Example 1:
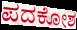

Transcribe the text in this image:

ಪದಕೋಶ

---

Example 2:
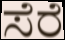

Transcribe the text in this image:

ಸೆರೆ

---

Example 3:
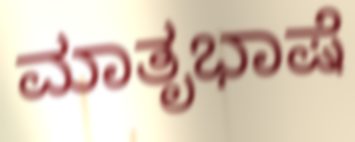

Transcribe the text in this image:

ಮಾತೃಭಾಷೆ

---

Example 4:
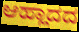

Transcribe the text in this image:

ಆಹ್ಲಾದದ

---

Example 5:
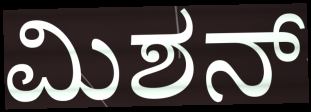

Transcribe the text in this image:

ಮಿಶನ್